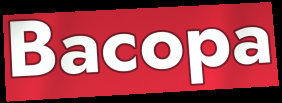
Bacopa